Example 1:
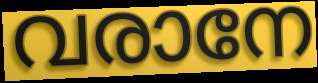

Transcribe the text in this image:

വരാനേ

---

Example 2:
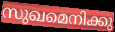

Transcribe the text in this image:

സുഖമെനിക്കു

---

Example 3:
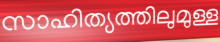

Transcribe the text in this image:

സാഹിത്യത്തിലുമുള്ള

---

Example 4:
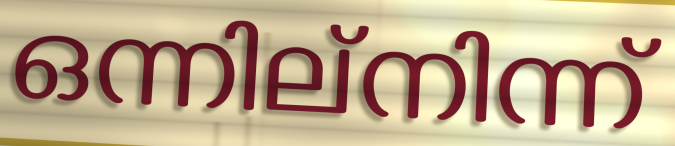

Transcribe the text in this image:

ഒന്നില്നിന്ന്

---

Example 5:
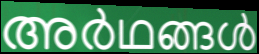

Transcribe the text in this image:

അർഥങ്ങൾ